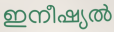
ഇനീഷ്യൽ